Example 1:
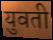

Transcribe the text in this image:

युवती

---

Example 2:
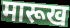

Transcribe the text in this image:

मारूख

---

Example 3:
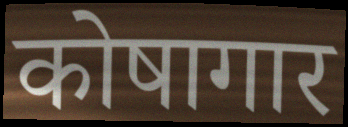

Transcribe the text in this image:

कोषागार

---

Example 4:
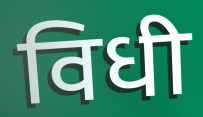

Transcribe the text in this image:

विधी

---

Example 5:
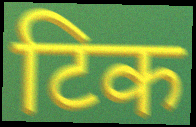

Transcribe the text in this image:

टिक